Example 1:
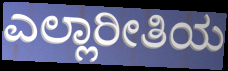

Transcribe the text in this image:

ಎಲ್ಲಾರೀತಿಯ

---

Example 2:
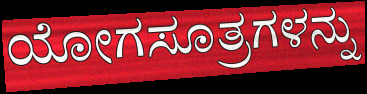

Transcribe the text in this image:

ಯೋಗಸೂತ್ರಗಳನ್ನು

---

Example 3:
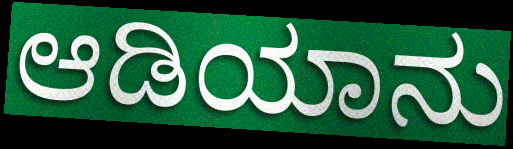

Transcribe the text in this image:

ಆಡಿಯಾನು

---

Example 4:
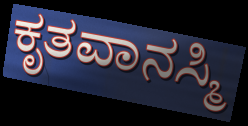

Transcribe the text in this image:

ಕೃತವಾನಸ್ಮಿ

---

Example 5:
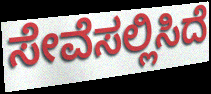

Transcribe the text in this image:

ಸೇವೆಸಲ್ಲಿಸಿದೆ